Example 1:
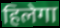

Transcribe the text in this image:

हिलेगा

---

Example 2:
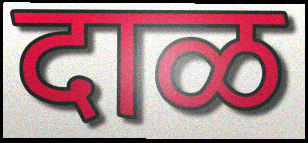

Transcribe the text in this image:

दाळ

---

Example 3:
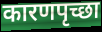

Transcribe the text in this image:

कारणपृच्छा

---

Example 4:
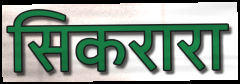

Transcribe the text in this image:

सिकरारा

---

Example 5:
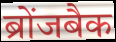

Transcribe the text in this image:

ब्रोंजबैक